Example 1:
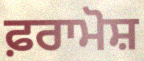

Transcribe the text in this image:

ਫ਼ਰਾਮੋਸ਼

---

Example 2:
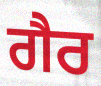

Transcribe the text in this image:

ਗੈਰ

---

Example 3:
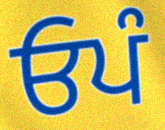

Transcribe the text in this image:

ਓਪੰ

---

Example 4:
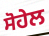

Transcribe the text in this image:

ਸੋਹੇਲ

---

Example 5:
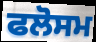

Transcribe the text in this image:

ਫਲੋਸਮ